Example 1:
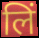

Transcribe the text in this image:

लिं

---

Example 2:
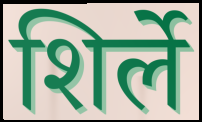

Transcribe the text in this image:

शिर्ले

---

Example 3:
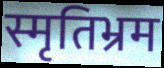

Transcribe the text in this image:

स्मृतिभ्रम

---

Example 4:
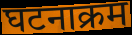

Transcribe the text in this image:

घटनाक्रम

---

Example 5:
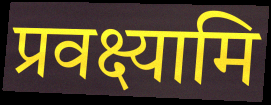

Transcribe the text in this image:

प्रवक्ष्यामि